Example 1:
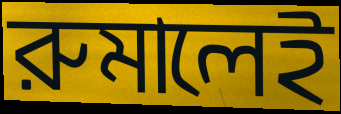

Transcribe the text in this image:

রুমালেই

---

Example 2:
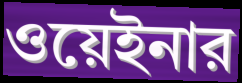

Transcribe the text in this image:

ওয়েইনার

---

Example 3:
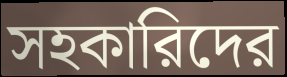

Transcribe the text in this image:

সহকারিদের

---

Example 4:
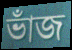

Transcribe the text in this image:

ভাঁজ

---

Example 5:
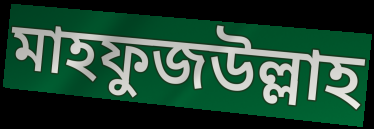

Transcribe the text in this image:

মাহফুজউল্লাহ